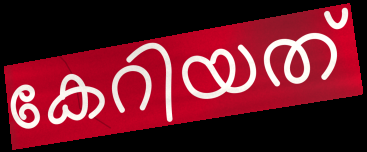
കേറിയത്